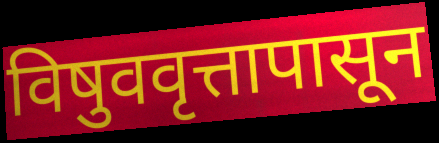
विषुववृत्तापासून